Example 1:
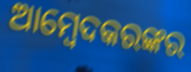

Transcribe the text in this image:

ଆମ୍ବେଦକରଙ୍କର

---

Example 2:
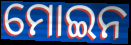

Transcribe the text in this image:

ମୋଇନ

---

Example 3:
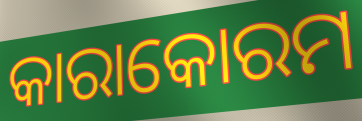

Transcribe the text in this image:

କାରାକୋରମ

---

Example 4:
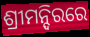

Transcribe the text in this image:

ଶ୍ରୀମନ୍ଦିରରେ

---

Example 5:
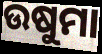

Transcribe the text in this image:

ଉଷୁମା